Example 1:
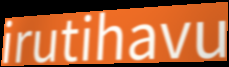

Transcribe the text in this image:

irutihavu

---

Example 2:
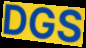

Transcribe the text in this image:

DGS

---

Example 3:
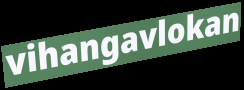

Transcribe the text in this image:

vihangavlokan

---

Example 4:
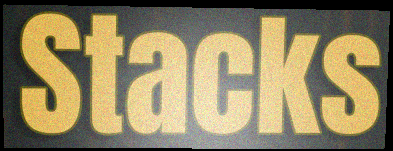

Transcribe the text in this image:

Stacks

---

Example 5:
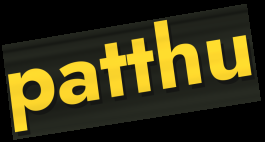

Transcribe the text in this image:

patthu